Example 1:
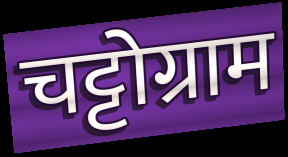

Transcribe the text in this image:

चट्टोग्राम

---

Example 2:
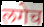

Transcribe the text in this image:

लगेच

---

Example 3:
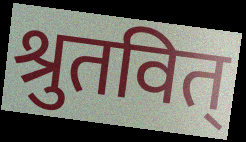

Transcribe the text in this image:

श्रुतवित्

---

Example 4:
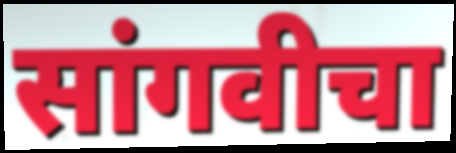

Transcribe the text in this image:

सांगवीचा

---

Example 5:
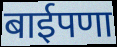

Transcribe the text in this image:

बाईपणा